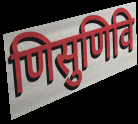
णिसुणिवि